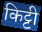
किट्टी